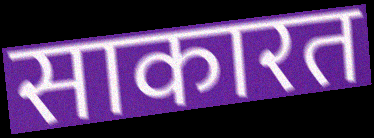
साकारत